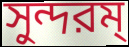
সুন্দরম্